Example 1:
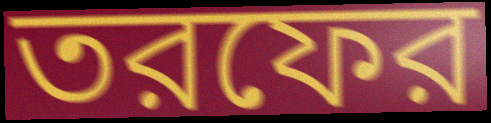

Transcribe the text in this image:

তরফের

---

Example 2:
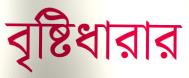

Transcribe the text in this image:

বৃষ্টিধারার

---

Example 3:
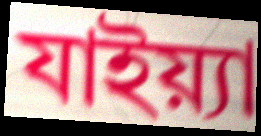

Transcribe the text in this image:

যাইয়্যা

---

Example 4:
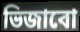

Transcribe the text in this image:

ভিজাবো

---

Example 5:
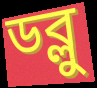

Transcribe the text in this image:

ডব্লু